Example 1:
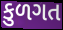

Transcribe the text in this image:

કુળગત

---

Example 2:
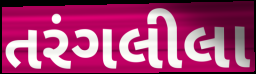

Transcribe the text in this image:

તરંગલીલા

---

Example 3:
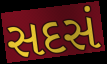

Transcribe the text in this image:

સદસં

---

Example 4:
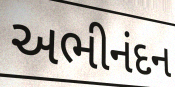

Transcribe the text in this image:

અભીનંદન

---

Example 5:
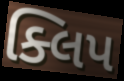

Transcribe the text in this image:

ક્લિપ